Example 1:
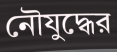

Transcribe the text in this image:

নৌযুদ্ধের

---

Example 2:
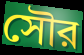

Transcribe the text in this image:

সৌর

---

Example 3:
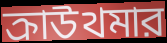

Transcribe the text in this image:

ক্রাউথমার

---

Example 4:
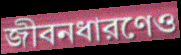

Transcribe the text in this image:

জীবনধারণেও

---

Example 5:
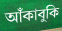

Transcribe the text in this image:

আঁকাবুকি